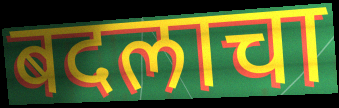
बदलाचा